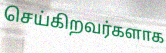
செய்கிறவர்களாக